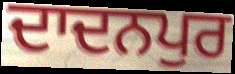
ਦਾਦਨਪੁਰ